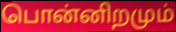
பொன்னிறமும்